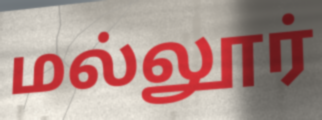
மல்லூர்